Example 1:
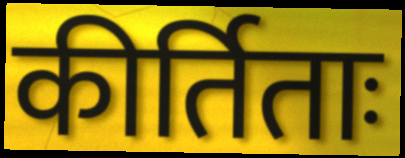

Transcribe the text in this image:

कीर्तिताः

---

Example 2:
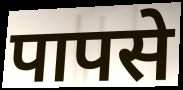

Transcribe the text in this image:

पापसे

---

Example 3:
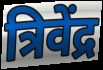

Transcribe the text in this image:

त्रिवेंद्र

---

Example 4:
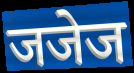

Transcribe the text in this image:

जजेज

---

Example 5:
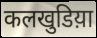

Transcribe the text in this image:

कलखुडिय़ा